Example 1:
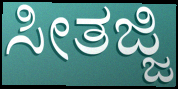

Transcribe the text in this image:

ಸೀತಜ್ಜಿ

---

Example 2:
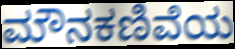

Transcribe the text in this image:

ಮೌನಕಣಿವೆಯ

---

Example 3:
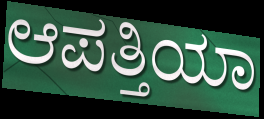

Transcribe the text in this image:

ಆಪತ್ತಿಯಾ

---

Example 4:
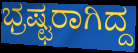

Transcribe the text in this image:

ಭ್ರಷ್ಟರಾಗಿದ್ದ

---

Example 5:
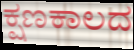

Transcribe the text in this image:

ಕ್ಷಣಕಾಲದ